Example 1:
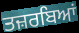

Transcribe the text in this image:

ਤਜ਼ਰਬਿਆਂ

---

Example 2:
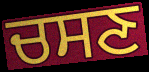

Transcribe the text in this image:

ਚਸਣ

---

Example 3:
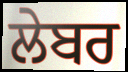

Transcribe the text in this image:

ਲੇਬਰ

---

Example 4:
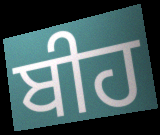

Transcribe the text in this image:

ਬੀਹ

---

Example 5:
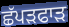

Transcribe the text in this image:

ਛੱਪੜਫਾੜ